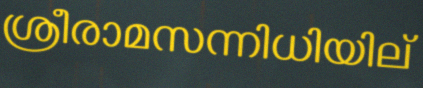
ശ്രീരാമസന്നിധിയില്